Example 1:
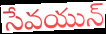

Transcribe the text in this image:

సేవయున్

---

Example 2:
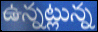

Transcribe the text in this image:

ఉన్నట్లున్న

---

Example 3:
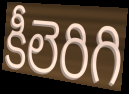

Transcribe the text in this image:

కీలెరిగి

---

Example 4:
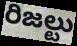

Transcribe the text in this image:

రిజల్టు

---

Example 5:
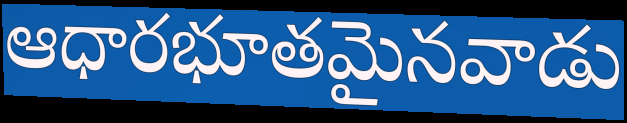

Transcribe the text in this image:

ఆధారభూతమైనవాడు